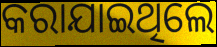
କରାଯାଇଥିଲେ